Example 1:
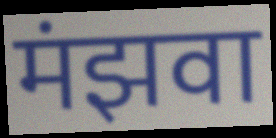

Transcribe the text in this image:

मंझवा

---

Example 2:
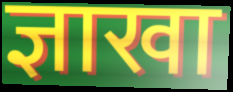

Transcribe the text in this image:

ज्ञाखा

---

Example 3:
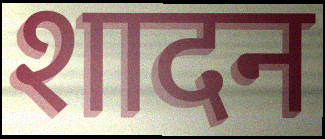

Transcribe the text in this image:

शादन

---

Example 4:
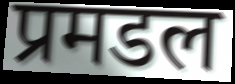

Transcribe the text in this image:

प्रमडल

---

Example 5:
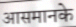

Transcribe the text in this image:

आसमानके